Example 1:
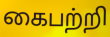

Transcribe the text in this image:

கைபற்றி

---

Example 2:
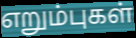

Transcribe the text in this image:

எறும்புகள்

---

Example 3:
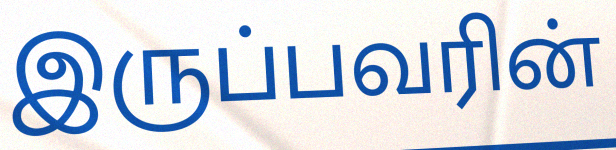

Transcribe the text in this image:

இருப்பவரின்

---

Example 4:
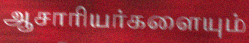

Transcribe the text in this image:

ஆசாரியர்களையும்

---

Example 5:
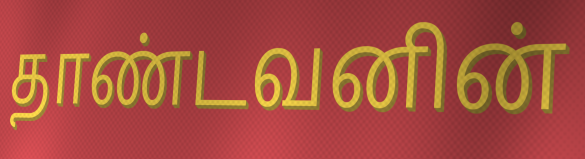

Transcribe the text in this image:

தாண்டவனின்